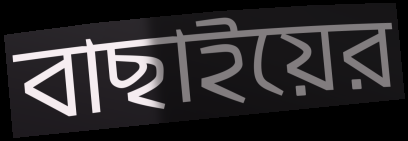
বাছাইয়ের